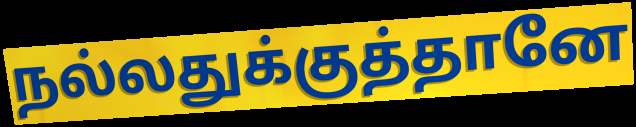
நல்லதுக்குத்தானே